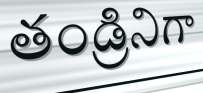
తండ్రినిగా